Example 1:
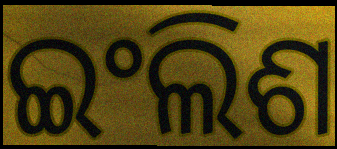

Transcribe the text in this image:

ଇଂଲିଶ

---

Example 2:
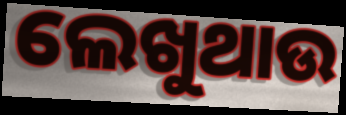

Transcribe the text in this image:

ଲେଖୁଥାଉ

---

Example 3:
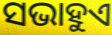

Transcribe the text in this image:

ସଭାହୁଏ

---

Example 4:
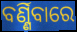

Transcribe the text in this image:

ବର୍ଣ୍ଣିବାରେ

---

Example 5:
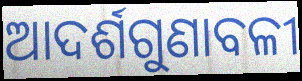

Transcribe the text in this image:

ଆଦର୍ଶଗୁଣାବଳୀ